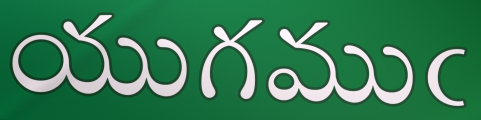
యుగముఁ